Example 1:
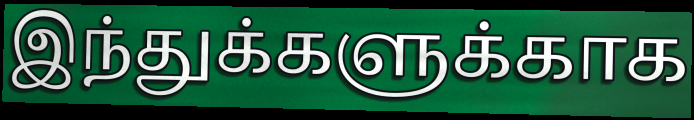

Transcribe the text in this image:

இந்துக்களுக்காக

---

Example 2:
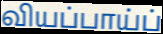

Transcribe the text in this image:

வியப்பாய்ப்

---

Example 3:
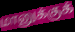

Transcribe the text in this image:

மானுக்குக்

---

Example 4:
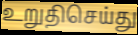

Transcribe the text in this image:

உறுதிசெய்து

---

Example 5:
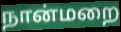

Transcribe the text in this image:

நான்மறை